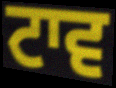
ਟਾਵ